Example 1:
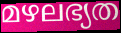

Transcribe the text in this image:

മഴലഭ്യത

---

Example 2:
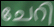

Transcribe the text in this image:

ചേറി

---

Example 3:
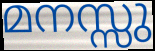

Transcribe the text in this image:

മനസ്സു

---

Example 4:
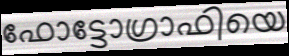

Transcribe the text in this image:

ഫോട്ടോഗ്രാഫിയെ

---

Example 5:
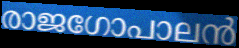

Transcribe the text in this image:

രാജഗോപാലൻ